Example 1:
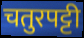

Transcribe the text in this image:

चतुरपट्टी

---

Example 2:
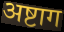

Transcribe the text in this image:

अष्टाग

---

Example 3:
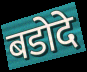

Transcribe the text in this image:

बडोदे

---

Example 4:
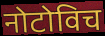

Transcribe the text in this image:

नोटोविच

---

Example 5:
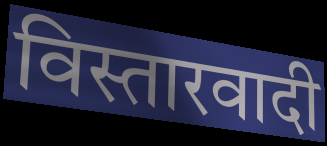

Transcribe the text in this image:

विस्तारवादी